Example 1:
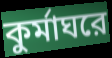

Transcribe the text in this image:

কুর্মাঘরে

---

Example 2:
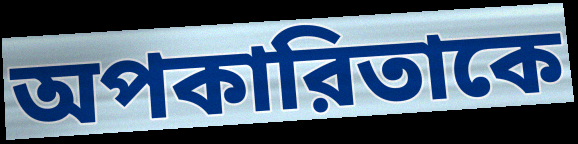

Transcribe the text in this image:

অপকারিতাকে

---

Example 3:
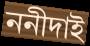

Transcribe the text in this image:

ননীদাই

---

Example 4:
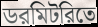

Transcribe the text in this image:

ডরমিটরিতে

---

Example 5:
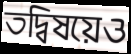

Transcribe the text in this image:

তদ্বিষয়েও